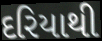
દરિયાથી